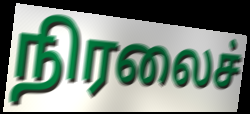
நிரலைச்